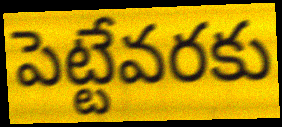
పెట్టేవరకు